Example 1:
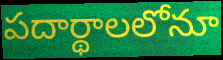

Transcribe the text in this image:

పదార్థాలలోనూ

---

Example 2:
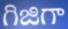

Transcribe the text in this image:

గిజిగా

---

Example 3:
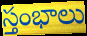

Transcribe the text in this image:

స్తంభాలు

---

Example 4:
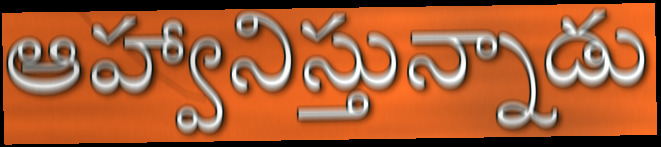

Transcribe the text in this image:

ఆహ్వానిస్తున్నాడు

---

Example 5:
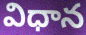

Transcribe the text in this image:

విధాన